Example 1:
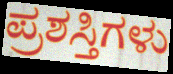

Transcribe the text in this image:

ಪ್ರಶಸ್ತಿಗಳು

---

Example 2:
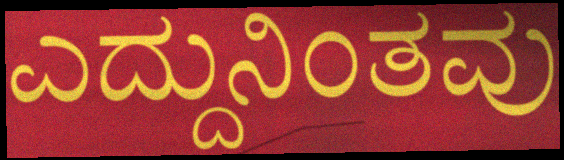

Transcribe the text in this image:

ಎದ್ದುನಿಂತವು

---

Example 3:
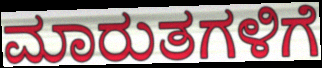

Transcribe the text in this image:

ಮಾರುತಗಳಿಗೆ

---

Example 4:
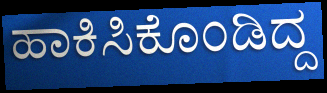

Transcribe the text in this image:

ಹಾಕಿಸಿಕೊಂಡಿದ್ದ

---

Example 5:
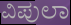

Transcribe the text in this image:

ವಿಪುಲಾ